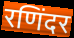
रणिंदर